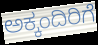
ಅಕ್ಕಂದಿರಿಗೆ